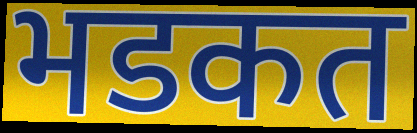
भडकत